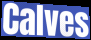
Calves